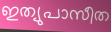
ഇത്യുപാസീത